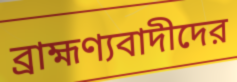
ব্রাহ্মণ্যবাদীদের